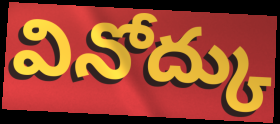
వినోద్కు